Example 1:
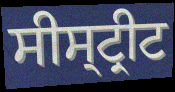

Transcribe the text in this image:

ਸੀਸ੍ਟ੍ਰੀਟ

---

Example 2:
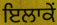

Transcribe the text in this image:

ਇਲਾਕੇਂ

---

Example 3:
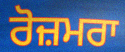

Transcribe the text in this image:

ਰੋਜ਼ਮਰਾ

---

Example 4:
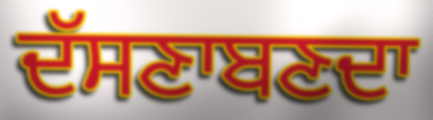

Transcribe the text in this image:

ਦੱਸਣਾਬਣਦਾ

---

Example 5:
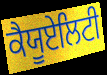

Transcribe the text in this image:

ਕੈਯੂਏਲਿਟੀ